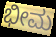
ಭೀಮ